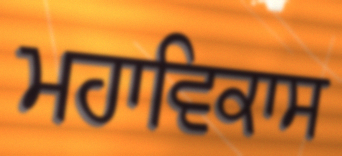
ਮਹਾਵਿਕਾਸ